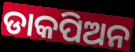
ଡାକପିଅନ